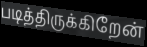
படித்திருக்கிறேன்